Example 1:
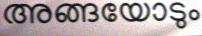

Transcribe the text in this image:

അങ്ങയോടും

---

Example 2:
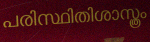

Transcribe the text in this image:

പരിസ്ഥിതിശാസ്ത്രം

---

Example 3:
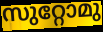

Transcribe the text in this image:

സുറ്റോമു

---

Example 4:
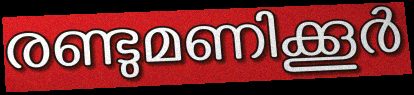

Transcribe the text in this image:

രണ്ടുമണിക്കൂർ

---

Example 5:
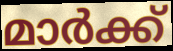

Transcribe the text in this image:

മാർക്ക്